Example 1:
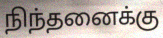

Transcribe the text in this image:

நிந்தனைக்கு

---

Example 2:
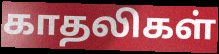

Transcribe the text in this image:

காதலிகள்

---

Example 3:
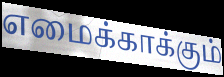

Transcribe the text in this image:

எமைக்காக்கும்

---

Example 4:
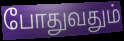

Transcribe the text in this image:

போதுவதும்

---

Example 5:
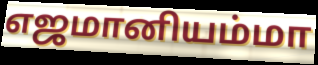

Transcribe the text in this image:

எஜமானியம்மா